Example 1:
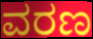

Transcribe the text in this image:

ವರಣ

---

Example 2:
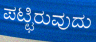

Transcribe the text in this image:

ಪಟ್ಟಿರುವುದು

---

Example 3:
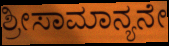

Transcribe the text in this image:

ಶ್ರೀಸಾಮಾನ್ಯನೇ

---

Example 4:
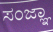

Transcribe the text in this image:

ಸಂಜ್ಞಾ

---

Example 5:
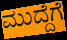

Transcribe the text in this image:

ಮುದ್ದೆಗೆ